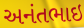
અનંતભાઇ